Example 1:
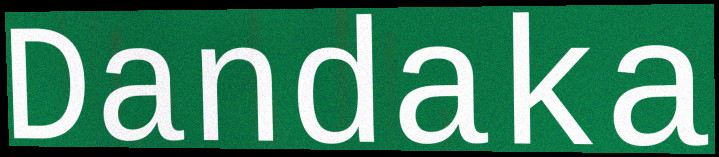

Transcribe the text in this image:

Dandaka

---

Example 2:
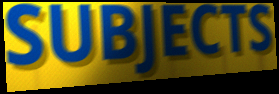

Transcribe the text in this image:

SUBJECTS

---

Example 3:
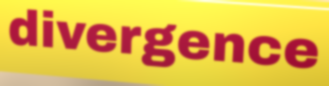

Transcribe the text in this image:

divergence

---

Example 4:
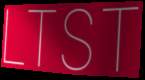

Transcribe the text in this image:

LTST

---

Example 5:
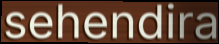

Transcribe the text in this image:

sehendira